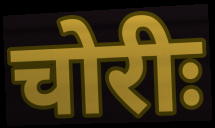
चोरीः